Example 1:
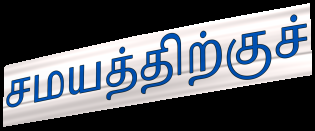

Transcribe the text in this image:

சமயத்திற்குச்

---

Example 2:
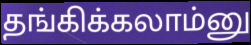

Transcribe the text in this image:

தங்கிக்கலாம்னு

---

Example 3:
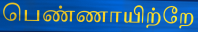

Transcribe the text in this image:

பெண்ணாயிற்றே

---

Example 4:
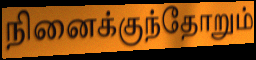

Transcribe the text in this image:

நினைக்குந்தோறும்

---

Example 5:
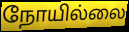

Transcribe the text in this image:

நோயில்லை